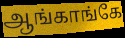
ஆங்காங்கே